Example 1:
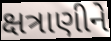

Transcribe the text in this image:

ક્ષત્રાણીને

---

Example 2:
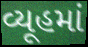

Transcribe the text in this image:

વ્યૂહમાં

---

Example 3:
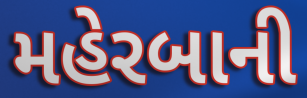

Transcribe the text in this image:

મહેરબાની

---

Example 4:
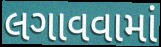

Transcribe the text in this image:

લગાવવામાં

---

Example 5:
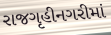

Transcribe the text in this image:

રાજગૃહીનગરીમાં